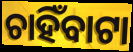
ଚାହିଁବାଟା